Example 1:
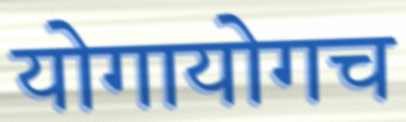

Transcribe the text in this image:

योगायोगच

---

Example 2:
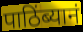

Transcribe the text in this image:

पाठिंब्यानं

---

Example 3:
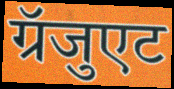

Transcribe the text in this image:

ग्रॅजुएट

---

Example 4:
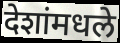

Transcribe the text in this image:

देशांमधले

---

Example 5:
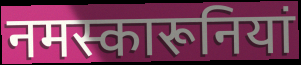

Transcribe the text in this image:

नमस्कारूनियां